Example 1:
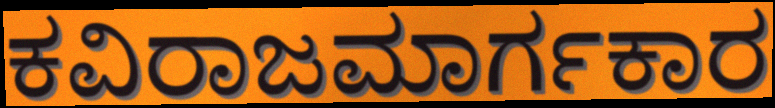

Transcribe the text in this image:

ಕವಿರಾಜಮಾರ್ಗಕಾರ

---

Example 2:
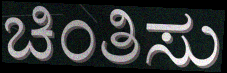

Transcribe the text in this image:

ಚಿಂತಿಸು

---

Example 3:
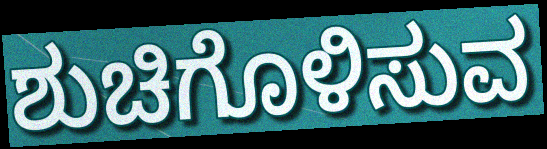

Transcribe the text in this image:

ಶುಚಿಗೊಳಿಸುವ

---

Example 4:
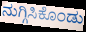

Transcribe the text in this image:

ನುಗ್ಗಿಸಿಕೊಂಡು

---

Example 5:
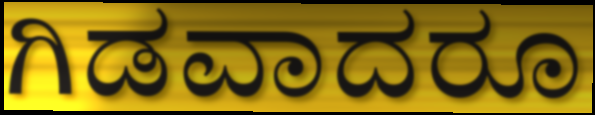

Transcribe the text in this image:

ಗಿಡವಾದರೂ